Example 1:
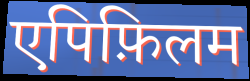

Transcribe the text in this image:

एपिफ़िलम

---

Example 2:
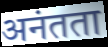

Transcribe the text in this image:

अनंतता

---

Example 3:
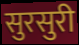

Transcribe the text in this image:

सुरसुरी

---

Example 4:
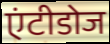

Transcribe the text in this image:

एंटीडोज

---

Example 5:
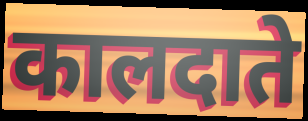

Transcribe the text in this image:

कालदाते